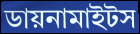
ডায়নামাইটস